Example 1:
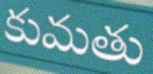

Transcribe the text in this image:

కుమతు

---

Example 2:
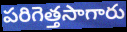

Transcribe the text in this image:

పరిగెత్తసాగారు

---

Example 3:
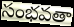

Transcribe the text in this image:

సంభవతా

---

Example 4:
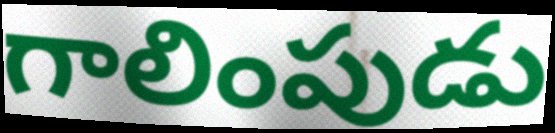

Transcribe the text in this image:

గాలింపుడు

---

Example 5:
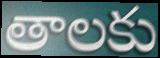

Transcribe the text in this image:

తాలకు